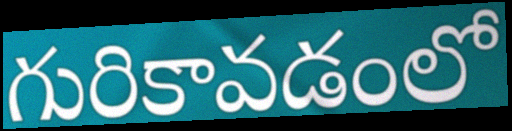
గురికావడంలో